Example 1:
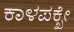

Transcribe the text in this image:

ಕಾಳಪಕ್ಖೇ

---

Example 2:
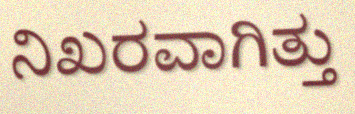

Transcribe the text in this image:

ನಿಖರವಾಗಿತ್ತು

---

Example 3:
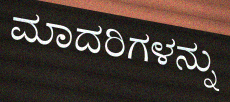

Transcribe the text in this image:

ಮಾದರಿಗಳನ್ನು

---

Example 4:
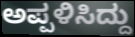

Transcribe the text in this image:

ಅಪ್ಪಳಿಸಿದ್ದು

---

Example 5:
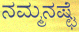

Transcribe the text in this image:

ನಮ್ಮನಷ್ಟೆ